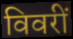
विवरीं